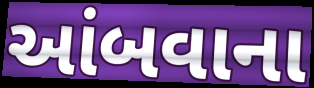
આંબવાના